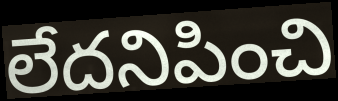
లేదనిపించి